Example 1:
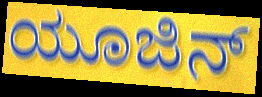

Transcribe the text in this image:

ಯೂಜಿನ್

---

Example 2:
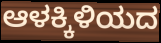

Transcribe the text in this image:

ಆಳಕ್ಕಿಳಿಯದ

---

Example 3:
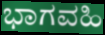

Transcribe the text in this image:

ಭಾಗವಹಿ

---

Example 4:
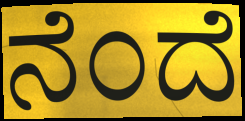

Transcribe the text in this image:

ನೆಂದೆ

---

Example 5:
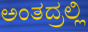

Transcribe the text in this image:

ಅಂತದ್ರಲ್ಲಿ